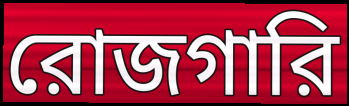
রোজগারি